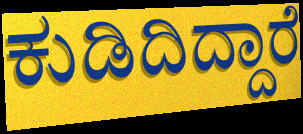
ಕುಡಿದಿದ್ದಾರೆ